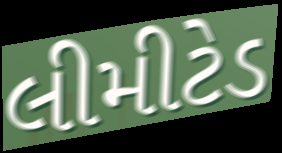
લીમીટેડ